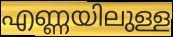
എണ്ണയിലുള്ള